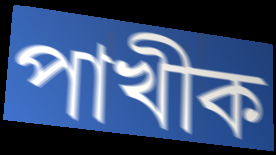
পাখীক